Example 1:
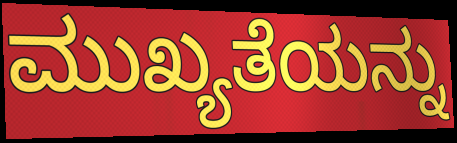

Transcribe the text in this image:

ಮುಖ್ಯತೆಯನ್ನು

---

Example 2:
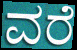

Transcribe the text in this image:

ವರೆ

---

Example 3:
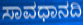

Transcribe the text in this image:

ಸಾವಧಾನದಿ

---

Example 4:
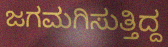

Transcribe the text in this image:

ಜಗಮಗಿಸುತ್ತಿದ್ದ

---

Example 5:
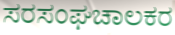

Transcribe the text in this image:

ಸರಸಂಘಚಾಲಕರ